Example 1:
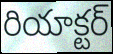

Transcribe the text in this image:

రియాక్టర్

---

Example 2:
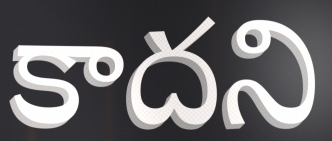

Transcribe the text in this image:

కాదని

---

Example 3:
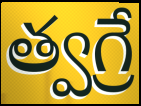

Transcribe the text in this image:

త్వగ్రే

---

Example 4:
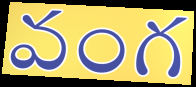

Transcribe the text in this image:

వంగ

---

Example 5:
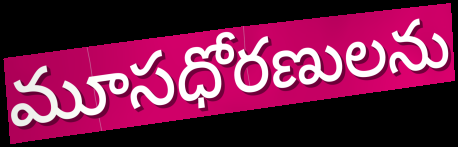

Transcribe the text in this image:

మూసధోరణులను